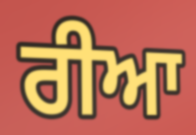
ਰੀਆ